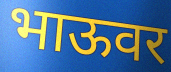
भाऊवर